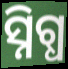
ସ୍ନିଗ୍ଧ